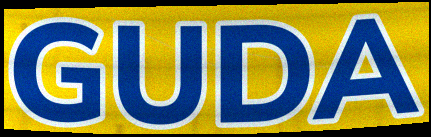
GUDA